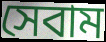
সেবাম